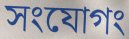
সংযোগং